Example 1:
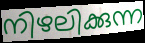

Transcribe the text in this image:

നിഴലിക്കുന്ന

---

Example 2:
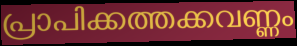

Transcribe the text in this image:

പ്രാപിക്കത്തക്കവണ്ണം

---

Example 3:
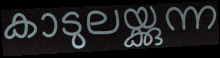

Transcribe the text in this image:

കാടുലയ്ക്കുന്ന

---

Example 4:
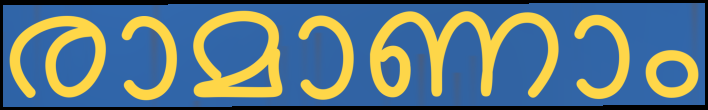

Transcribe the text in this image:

രാമാണാം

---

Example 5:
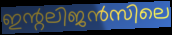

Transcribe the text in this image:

ഇന്റലിജൻസിലെ